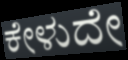
ಕೇಳುದೇ